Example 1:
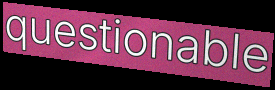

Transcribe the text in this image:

questionable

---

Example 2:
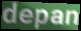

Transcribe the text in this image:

depan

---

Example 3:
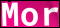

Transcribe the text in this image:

Mor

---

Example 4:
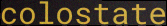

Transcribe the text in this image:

colostate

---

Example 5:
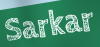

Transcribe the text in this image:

Sarkar